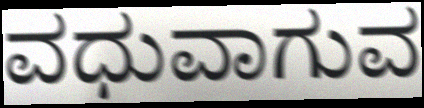
ವಧುವಾಗುವ